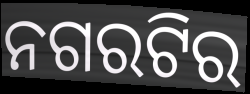
ନଗରଟିର